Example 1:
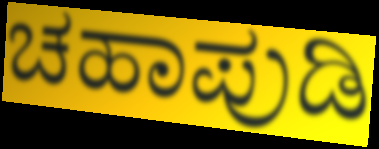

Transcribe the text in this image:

ಚಹಾಪುಡಿ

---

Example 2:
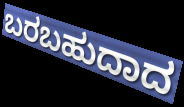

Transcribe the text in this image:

ಬರಬಹುದಾದ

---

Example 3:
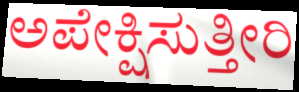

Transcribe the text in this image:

ಅಪೇಕ್ಷಿಸುತ್ತೀರಿ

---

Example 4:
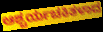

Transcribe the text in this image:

ಆಶ್ಚರ್ಯಚಕಿತಳಾದ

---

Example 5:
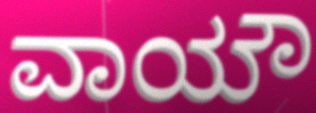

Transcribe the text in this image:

ವಾಯೌ